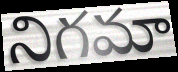
నిగమా